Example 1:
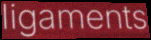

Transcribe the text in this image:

ligaments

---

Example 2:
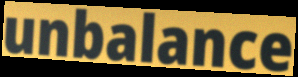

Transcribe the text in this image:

unbalance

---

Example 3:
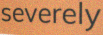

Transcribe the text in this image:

severely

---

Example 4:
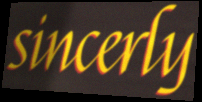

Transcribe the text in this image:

sincerly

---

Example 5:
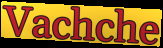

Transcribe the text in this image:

Vachche